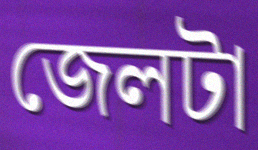
জেলটা